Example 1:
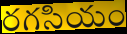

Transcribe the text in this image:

రగసియం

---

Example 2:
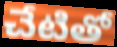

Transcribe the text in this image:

చేటితో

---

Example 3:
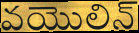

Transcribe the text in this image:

వయొలిన్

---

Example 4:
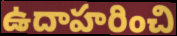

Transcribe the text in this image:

ఉదాహరించి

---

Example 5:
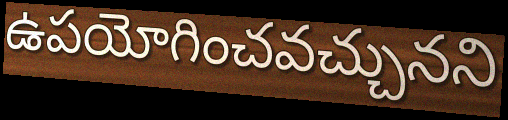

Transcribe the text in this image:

ఉపయోగించవచ్చునని